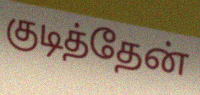
குடித்தேன்